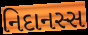
નિદાનસ્સ